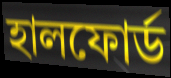
হালফোর্ড